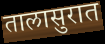
तालासुरात